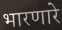
भारणारे